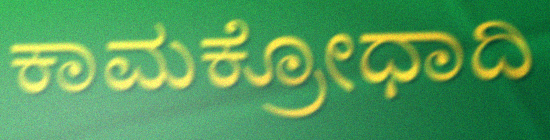
ಕಾಮಕ್ರೋಧಾದಿ